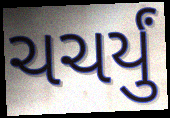
ચચર્યું